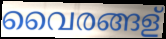
വൈരങ്ങള്